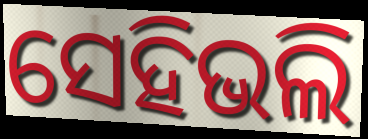
ସେହିଭଲି